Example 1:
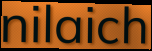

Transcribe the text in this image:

nilaich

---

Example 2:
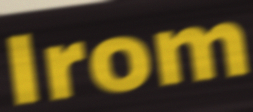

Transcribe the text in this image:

Irom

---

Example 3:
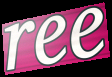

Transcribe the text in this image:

ree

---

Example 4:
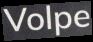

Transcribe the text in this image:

Volpe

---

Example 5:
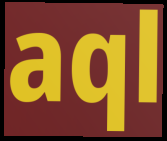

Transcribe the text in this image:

aql